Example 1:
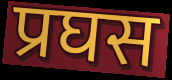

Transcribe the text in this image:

प्रघस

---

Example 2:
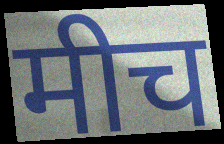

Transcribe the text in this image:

मीच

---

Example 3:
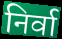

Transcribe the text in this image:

निर्वा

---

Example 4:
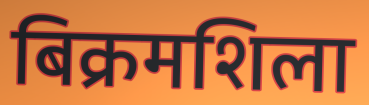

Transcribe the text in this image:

बिक्रमशिला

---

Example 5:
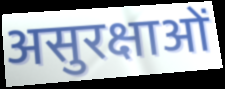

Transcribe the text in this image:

असुरक्षाओं